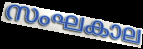
സംഘകാല